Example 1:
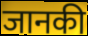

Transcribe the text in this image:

जानकी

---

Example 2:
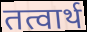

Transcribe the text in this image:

तत्वार्थ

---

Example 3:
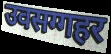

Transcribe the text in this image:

उवसग्गहर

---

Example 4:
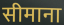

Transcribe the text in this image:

सीमाना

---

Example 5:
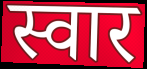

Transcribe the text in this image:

स्वार